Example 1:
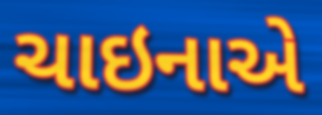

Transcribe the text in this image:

ચાઇનાએ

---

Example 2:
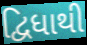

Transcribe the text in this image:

દ્વિધાથી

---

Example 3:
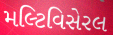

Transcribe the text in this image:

મલ્ટિવિસેરલ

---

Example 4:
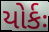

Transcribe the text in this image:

યોર્કઃ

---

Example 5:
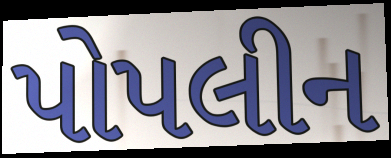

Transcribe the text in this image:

પોપલીન